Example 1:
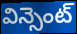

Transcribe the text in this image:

విన్సెంట్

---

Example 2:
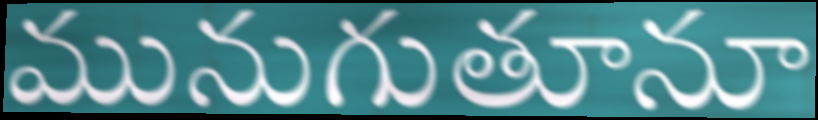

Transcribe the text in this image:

మునుగుతూనూ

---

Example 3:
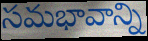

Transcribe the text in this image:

సమభావాన్ని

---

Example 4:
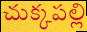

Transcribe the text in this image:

చుక్కపల్లి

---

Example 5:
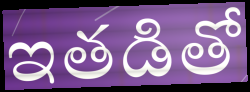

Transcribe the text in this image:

ఇతడితో